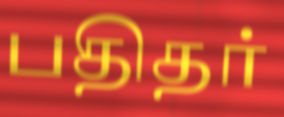
பதிதர்